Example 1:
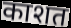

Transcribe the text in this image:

काशत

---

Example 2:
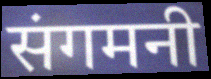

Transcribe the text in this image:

संगमनी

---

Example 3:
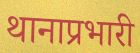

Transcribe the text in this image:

थानाप्रभारी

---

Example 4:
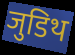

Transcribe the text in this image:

जुडिथ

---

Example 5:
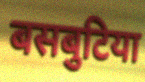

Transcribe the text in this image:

बसबुटिया